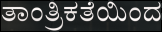
ತಾಂತ್ರಿಕತೆಯಿಂದ